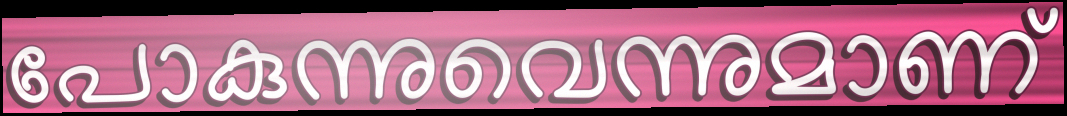
പോകുന്നുവെന്നുമാണ്